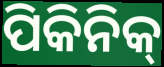
ପିକିନିକ୍